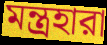
মন্ত্রহারা